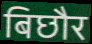
बिछौर